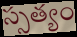
స్సత్యం